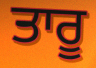
ਤਾਰੂ